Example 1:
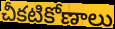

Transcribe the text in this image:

చీకటికోణాలు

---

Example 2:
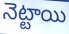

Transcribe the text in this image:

నెట్టాయి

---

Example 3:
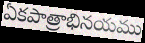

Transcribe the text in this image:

ఏకపాత్రాభినయము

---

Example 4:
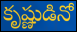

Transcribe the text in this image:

కృష్ణుడినో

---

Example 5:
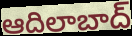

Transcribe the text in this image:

ఆదిలాబాద్